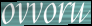
ovvoru